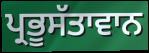
ਪ੍ਰਭੂਸੱਤਾਵਾਨ